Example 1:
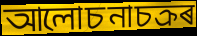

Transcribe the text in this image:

আলোচনাচক্ৰৰ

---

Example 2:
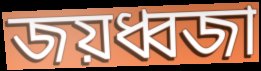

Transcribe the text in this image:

জয়ধ্বজা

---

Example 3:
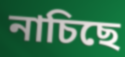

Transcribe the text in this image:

নাচিছে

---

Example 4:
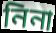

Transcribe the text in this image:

নিনা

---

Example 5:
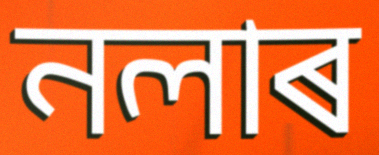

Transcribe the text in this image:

নলাৰ